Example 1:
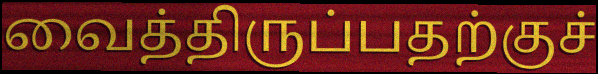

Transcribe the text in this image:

வைத்திருப்பதற்குச்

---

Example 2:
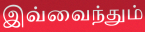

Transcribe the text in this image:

இவ்வைந்தும்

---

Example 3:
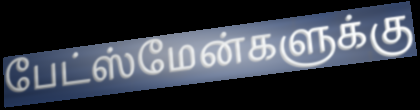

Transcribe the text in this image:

பேட்ஸ்மேன்களுக்கு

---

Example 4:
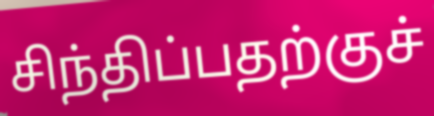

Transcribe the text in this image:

சிந்திப்பதற்குச்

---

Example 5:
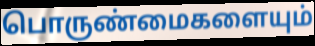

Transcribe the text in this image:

பொருண்மைகளையும்